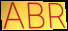
ABR